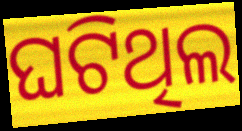
ଘଟିଥିଲ